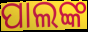
ପାଲଙ୍କ